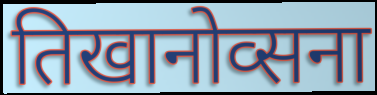
तिखानोव्सना